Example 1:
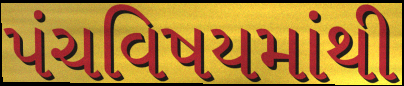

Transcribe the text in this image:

પંચવિષયમાંથી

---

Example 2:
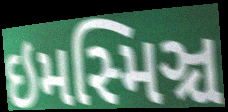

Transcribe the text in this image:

ઇમસ્મિઞ્ચ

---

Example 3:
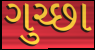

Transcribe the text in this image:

ગુચ્છા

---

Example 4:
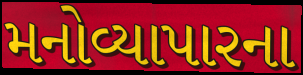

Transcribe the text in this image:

મનોવ્યાપારના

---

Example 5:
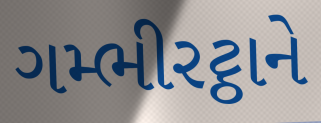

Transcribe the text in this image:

ગમ્ભીરટ્ઠાને